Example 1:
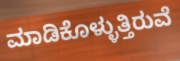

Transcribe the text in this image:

ಮಾಡಿಕೊಳ್ಳುತ್ತಿರುವೆ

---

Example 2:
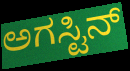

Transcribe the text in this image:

ಅಗಸ್ಟಿನ್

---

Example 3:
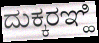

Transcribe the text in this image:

ದುಕ್ಕರಞ್ಹಿ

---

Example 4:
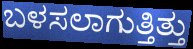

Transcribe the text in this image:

ಬಳಸಲಾಗುತ್ತಿತ್ತು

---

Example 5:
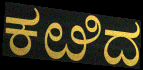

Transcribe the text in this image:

ಕೞಿದ